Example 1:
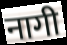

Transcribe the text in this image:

नागी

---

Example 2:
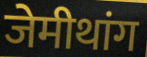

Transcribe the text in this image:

जेमीथांग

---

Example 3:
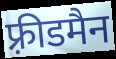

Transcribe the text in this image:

फ़्रीडमैन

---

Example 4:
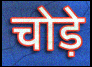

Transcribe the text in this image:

चोड़े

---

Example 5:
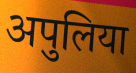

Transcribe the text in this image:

अपुलिया